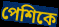
পেশিকে